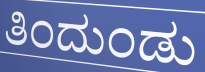
ತಿಂದುಂಡು